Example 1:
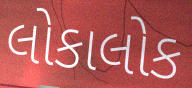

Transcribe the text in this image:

લોકાલોક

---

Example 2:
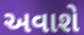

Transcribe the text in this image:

અવાશે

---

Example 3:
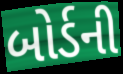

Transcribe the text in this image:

બોર્ડની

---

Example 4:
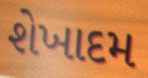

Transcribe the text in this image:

શેખાદમ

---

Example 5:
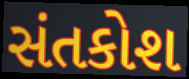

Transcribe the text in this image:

સંતકોશ